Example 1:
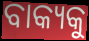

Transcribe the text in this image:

ବାକ୍ୟକୁ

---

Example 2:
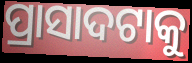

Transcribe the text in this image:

ପ୍ରାସାଦଟାକୁ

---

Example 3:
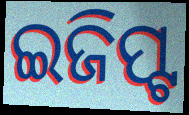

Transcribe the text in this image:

ଇଜିପ୍ଟ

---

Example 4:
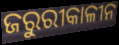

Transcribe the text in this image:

ଜରୁରୀକାଳୀନ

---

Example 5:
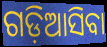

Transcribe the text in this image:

ଗଡ଼ିଆସିବା